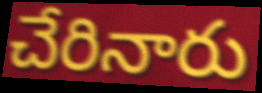
చేరినారు